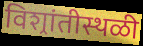
विश्रांतीस्थळी